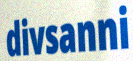
divsanni